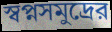
স্বপ্নসমুদ্রের